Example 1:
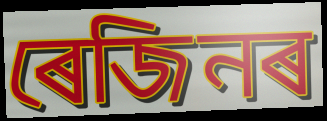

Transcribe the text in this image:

ৰেজিনৰ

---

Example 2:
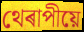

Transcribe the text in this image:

থেৰাপীয়ে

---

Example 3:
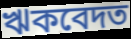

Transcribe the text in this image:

ঋকবেদত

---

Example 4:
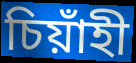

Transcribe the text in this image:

চিয়াঁহী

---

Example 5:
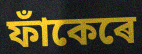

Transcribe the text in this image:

ফাঁকেৰে